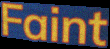
Faint